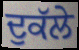
ਦੁਕੱਲੇ